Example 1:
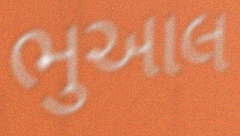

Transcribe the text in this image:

ભુઆલ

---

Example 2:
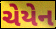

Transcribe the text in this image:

ચેયેન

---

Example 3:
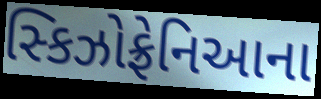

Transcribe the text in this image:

સ્કિઝોફ્રેનિઆના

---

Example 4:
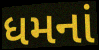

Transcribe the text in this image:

ધમનાં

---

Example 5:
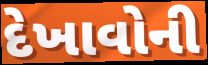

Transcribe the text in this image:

દેખાવોની